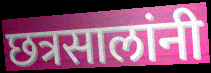
छत्रसालांनी